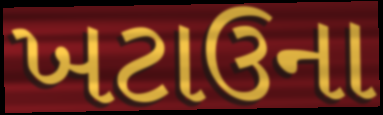
ખટાઉના